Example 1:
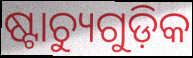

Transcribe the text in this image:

ଷ୍ଟାଚ୍ୟୁଗୁଡ଼ିକ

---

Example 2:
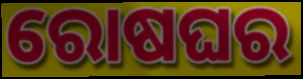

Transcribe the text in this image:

ରୋଷଘର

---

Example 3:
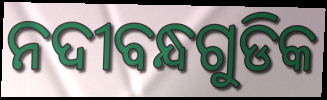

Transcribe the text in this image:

ନଦୀବନ୍ଧଗୁଡିକ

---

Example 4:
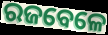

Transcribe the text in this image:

ରଜବେଳେ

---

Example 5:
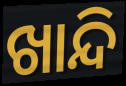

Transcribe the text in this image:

ଖାନ୍ଦି